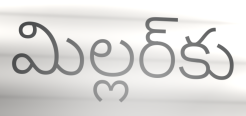
మిల్లర్‌కు